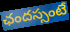
ఛందస్సంటే